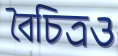
বৈচিত্রও